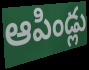
ఆపిండ్లు